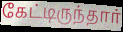
கேட்டிருந்தார்